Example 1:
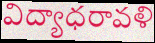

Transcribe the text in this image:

విద్యాధరావళి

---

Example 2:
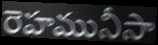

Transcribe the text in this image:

రెహమునీసా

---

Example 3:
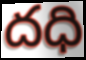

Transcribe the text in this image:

దధి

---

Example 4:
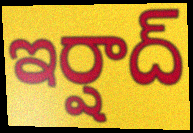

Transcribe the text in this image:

ఇర్షాద్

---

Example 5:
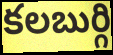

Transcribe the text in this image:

కలబుర్గి